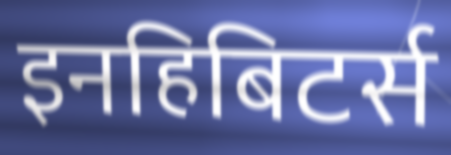
इनहिबिटर्स